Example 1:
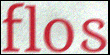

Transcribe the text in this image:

flos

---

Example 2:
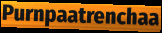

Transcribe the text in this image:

Purnpaatrenchaa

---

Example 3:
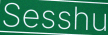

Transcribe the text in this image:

Sesshu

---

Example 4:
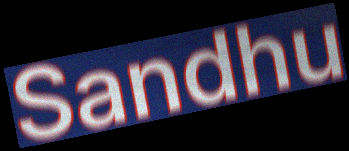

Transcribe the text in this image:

Sandhu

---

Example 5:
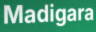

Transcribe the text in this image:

Madigara